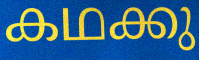
കഥക്കു